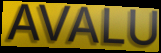
AVALU